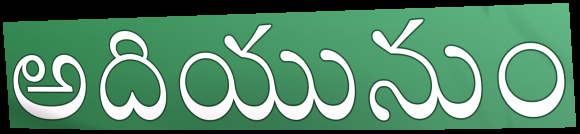
అదియునుం